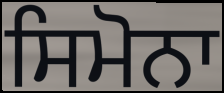
ਸਿਮੋਨਾ